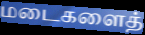
மடைகளைத்